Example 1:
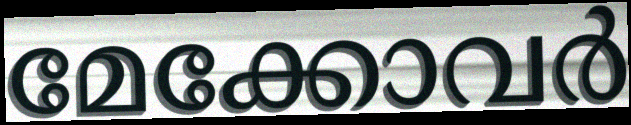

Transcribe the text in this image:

മേക്കോവർ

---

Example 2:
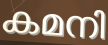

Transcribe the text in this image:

കമനി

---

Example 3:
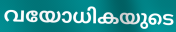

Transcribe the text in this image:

വയോധികയുടെ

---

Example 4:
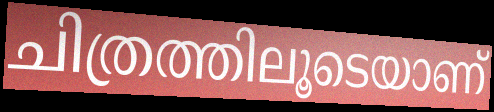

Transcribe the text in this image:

ചിത്രത്തിലൂടെയാണ്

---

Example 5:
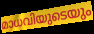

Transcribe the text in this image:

മാധവിയുടെയും